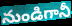
నుండిగానీ